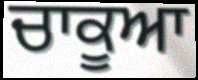
ਚਾਕੂਆ